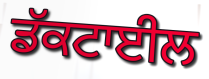
ਡੱਕਟਾਈਲ